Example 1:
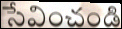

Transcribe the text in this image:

సేవించండి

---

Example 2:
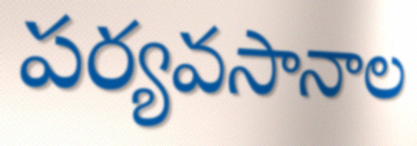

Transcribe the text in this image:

పర్యవసానాల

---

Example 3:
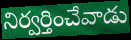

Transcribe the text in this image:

నిర్వర్తించేవాడు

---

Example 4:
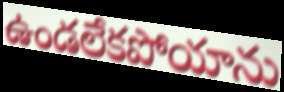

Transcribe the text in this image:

ఉండలేకపోయాను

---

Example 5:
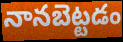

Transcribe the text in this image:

నానబెట్టడం